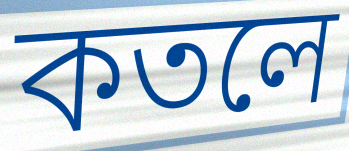
কতলে